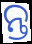
ନ୍ତ